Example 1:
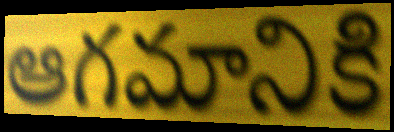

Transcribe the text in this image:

ఆగమానికి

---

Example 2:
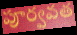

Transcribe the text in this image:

పూర్వవత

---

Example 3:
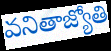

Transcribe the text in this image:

వనితాజ్యోతి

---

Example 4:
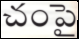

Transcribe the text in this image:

చంపై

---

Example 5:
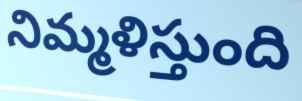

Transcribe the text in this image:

నిమ్మళిస్తుంది